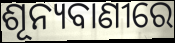
ଶୂନ୍ୟବାଣୀରେ